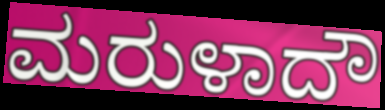
ಮರುಳಾದೌ